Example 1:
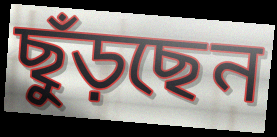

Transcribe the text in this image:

ছুঁড়ছেন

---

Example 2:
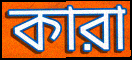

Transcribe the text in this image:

কারা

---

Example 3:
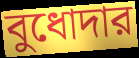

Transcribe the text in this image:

বুধোদার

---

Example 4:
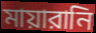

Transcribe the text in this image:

মায়ারানি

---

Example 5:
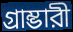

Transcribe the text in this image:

গ্রাম্ভারী